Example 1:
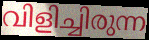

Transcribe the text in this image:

വിളിച്ചിരുന്ന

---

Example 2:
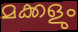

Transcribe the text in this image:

മക്കളും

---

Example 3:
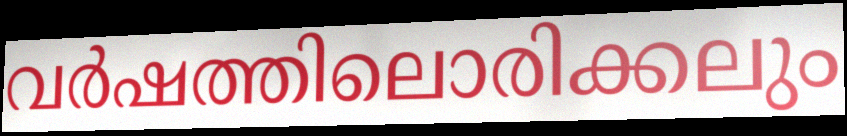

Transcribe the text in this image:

വർഷത്തിലൊരിക്കലും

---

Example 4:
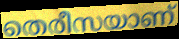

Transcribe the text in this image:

തെരീസയാണ്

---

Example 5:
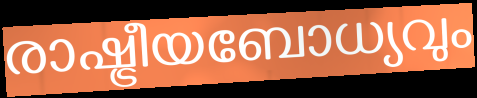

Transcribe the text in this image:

രാഷ്ട്രീയബോധ്യവും